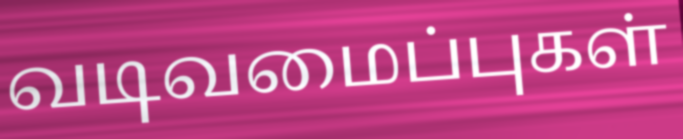
வடிவமைப்புகள்